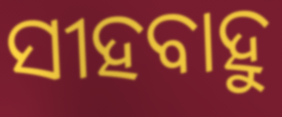
ସୀହବାହୁ